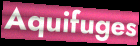
Aquifuges